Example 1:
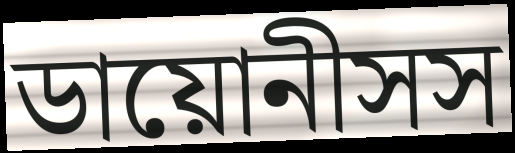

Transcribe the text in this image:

ডায়োনীসস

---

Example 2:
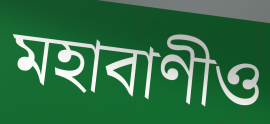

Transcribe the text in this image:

মহাবাণীও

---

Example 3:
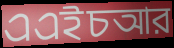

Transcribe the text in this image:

এএইচআর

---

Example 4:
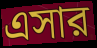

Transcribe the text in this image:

এসার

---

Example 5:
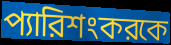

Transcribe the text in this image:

প্যারিশংকরকে